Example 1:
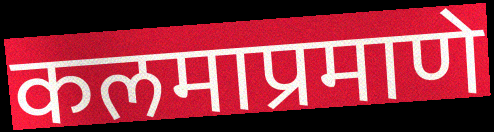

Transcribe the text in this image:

कलमाप्रमाणे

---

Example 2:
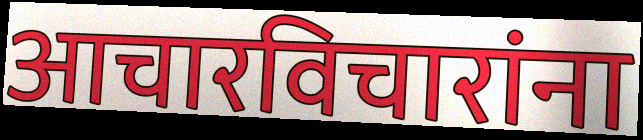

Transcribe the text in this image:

आचारविचारांना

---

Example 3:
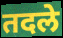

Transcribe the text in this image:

तदले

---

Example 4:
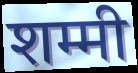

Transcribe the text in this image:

शम्मी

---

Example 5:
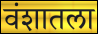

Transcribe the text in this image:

वंशातला